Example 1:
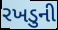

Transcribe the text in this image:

રખડુની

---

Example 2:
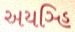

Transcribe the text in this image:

અયઞ્હિ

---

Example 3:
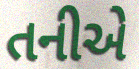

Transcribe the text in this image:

તનીએ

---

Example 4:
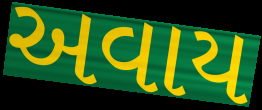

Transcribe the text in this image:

અવાય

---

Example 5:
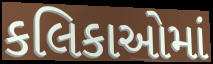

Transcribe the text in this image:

કલિકાઓમાં